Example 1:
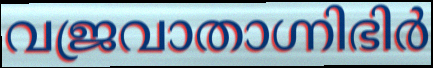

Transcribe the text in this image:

വജ്രവാതാഗ്നിഭിർ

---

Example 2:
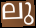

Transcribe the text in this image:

ലു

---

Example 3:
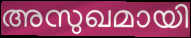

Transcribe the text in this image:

അസുഖമായി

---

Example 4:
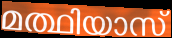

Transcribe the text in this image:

മത്ഥിയാസ്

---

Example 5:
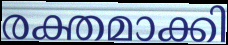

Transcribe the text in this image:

രക്തമാക്കി